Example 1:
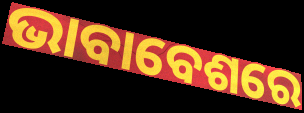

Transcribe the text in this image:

ଭାବାବେଶରେ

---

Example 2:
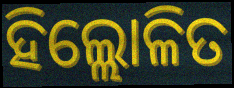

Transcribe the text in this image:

ହିଲ୍ଲୋଳିତ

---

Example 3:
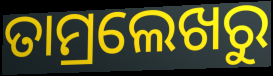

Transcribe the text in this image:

ତାମ୍ରଲେଖରୁ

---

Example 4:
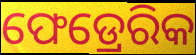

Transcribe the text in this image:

ଫେଡ୍ରେରିକ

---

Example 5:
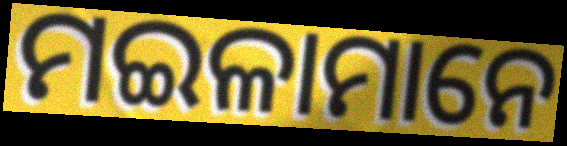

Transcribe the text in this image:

ମଇଳାମାନେ